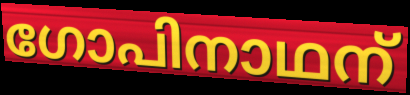
ഗോപിനാഥന്